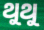
ଥୁଥୁ